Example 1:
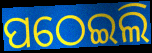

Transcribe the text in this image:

ପଠେଇଲି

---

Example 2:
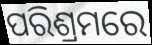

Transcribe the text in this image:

ପରିଶ୍ରମରେ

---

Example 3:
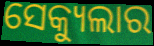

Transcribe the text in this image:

ସେକ୍ୟୁଲାର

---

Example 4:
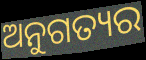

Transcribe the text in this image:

ଅନୁଗତ୍ୟର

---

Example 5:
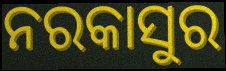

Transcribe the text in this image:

ନରକାସୁର